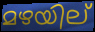
മഴയില്